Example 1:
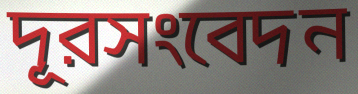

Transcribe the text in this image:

দূরসংবেদন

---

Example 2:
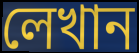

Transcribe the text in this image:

লেখান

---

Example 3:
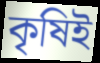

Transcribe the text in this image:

কৃষিই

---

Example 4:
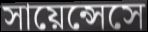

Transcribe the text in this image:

সায়েন্সেসে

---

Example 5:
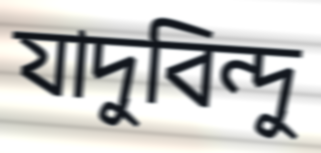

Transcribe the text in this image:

যাদুবিন্দু